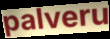
palveru